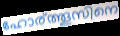
ഹോര്ത്തൂസിനെ